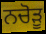
ਨਚੋੜੂ